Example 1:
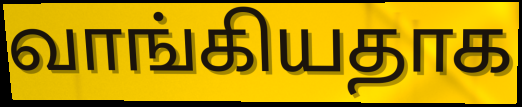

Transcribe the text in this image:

வாங்கியதாக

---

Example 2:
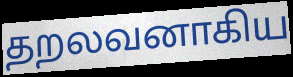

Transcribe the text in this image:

தறலவனாகிய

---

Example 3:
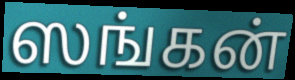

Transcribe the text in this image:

ஸங்கன்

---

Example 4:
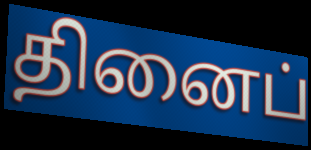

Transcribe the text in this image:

தினைப்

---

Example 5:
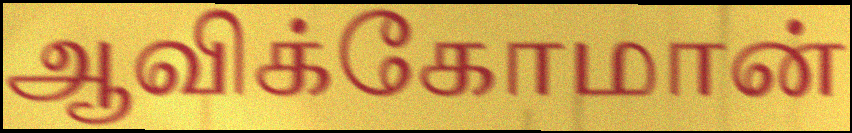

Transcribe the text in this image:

ஆவிக்கோமான்